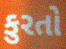
કુરતો